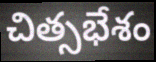
చిత్సభేశం